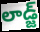
లాడ్జ్